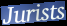
Jurists